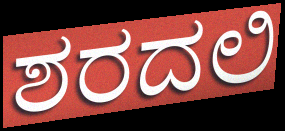
ಶರದಲಿ